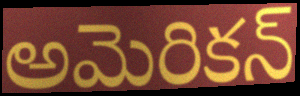
అమెరికన్